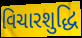
વિચારશુદ્ધિ